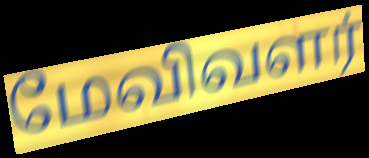
மேவிவளர்